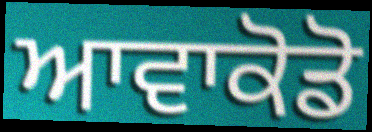
ਆਵਾਕੋਡੋ